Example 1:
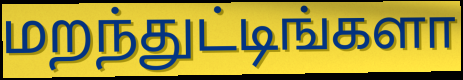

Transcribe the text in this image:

மறந்துட்டிங்களா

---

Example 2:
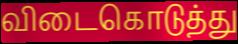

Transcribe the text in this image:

விடைகொடுத்து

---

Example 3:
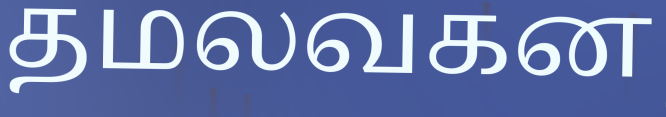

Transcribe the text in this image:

தமலவகன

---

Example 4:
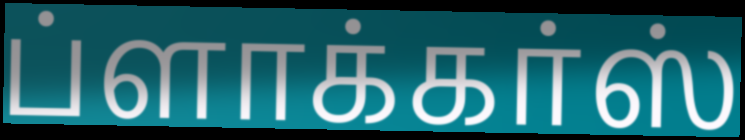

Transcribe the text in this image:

ப்ளாக்கர்ஸ்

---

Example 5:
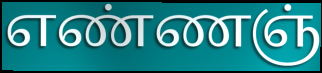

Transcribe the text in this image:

எண்ணஞ்